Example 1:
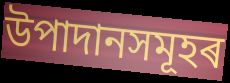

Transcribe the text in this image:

উপাদানসমূহৰ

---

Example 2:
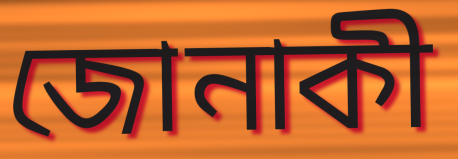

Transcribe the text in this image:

জোনাকী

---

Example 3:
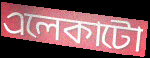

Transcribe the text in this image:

এলেকাটো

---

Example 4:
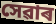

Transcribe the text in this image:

সেৱাৰ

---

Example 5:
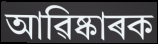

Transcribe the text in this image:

আৱিষ্কাৰক